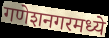
गणेशनगरमध्ये